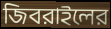
জিবরাইলের